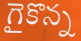
గైకొన్న